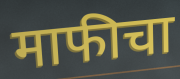
माफीचा